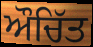
ਔਚਿੱਤ